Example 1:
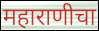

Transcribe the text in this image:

महाराणीचा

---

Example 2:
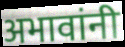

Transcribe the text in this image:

अभावांनी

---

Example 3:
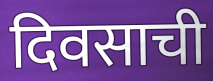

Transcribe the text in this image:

दिवसाची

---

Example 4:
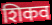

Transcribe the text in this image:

शिकव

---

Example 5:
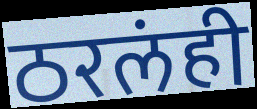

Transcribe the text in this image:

ठरलंही